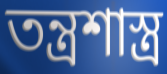
তন্ত্রশাস্ত্র